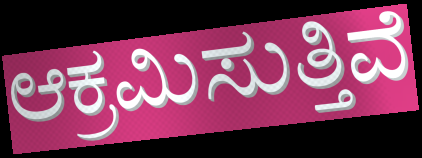
ಆಕ್ರಮಿಸುತ್ತಿವೆ